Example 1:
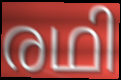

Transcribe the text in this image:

രഥി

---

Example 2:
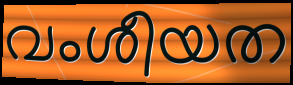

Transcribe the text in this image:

വംശീയത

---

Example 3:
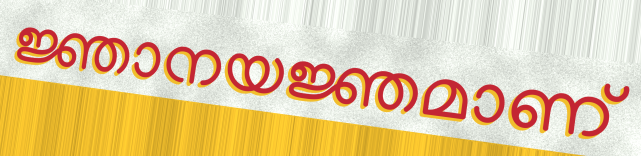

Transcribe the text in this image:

ജ്ഞാനയജ്ഞമാണ്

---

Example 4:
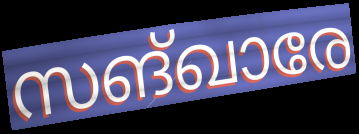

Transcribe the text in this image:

സങ്ഖാരേ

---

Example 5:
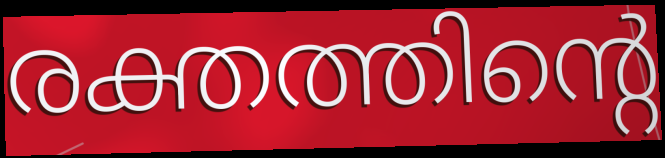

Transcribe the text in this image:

രക്തത്തിന്റെ